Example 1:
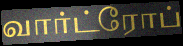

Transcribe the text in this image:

வார்ட்ரோப்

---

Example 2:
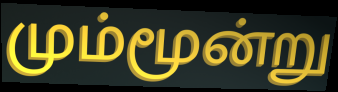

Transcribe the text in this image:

மும்மூன்று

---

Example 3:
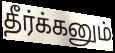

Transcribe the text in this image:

தீர்க்கனும்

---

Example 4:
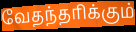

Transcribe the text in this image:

வேதந்தரிக்கும்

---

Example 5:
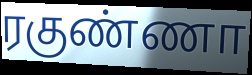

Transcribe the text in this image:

ரகுண்ணா